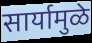
सार्यामुळे